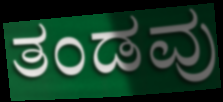
ತಂಡವು